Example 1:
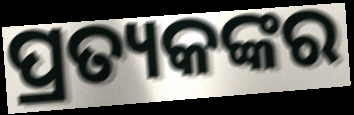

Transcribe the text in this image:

ପ୍ରତ୍ୟକଙ୍କର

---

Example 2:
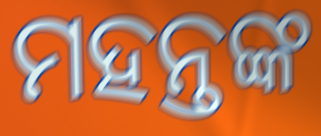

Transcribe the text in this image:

ମହନ୍ତଙ୍କ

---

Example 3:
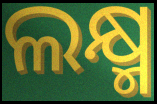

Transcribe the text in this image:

ଲକ୍ଷ୍ମ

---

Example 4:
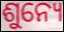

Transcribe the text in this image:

ଶୁନ୍ୟେ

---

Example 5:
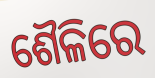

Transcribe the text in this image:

ଶୈଳିରେ